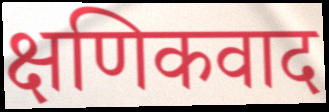
क्षणिकवाद